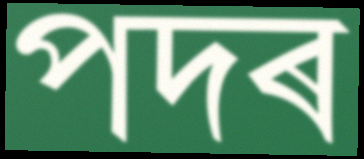
পদৰ